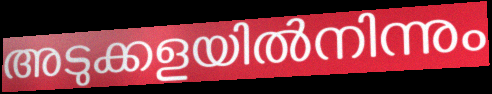
അടുക്കളയിൽനിന്നും